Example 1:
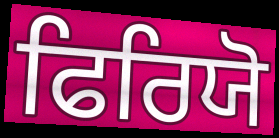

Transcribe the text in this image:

ਫਿਰਿਯੋ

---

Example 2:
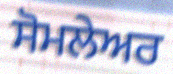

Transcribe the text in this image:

ਸੋਮਲੇਅਰ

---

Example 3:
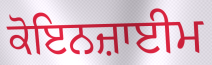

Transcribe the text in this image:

ਕੋਇਨਜ਼ਾਈਮ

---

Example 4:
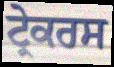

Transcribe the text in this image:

ਟ੍ਰੇਕਰਸ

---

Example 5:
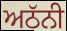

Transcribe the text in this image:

ਅਠੱਨੀ